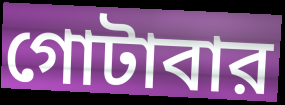
গোটাবার